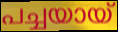
പച്ചയായ്